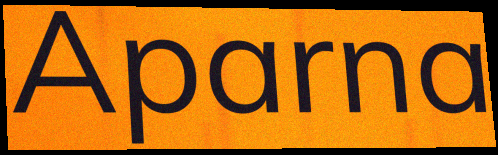
Aparna